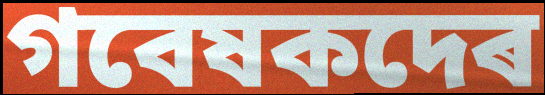
গবেষকদেৰ